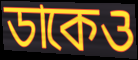
ডাকেও